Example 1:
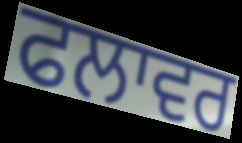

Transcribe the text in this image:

ਫਲਾਵਰ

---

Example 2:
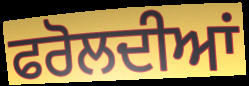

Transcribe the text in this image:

ਫਰੋਲਦੀਆਂ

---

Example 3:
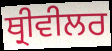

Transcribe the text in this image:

ਥ੍ਰੀਵੀਲਰ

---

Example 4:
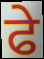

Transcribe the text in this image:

ਫੇ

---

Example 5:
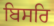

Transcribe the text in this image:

ਬਿਸਰਿ